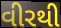
વીરથી